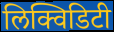
लिक्विडिटी